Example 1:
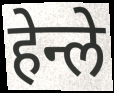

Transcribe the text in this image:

हेन्ले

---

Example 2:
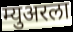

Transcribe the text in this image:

म्युअरला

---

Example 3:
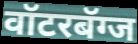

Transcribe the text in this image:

वॉटरबॅग्ज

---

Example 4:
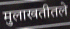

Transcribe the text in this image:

मुलाखतीतले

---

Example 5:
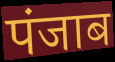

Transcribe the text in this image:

पंजाब